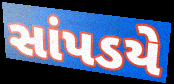
સાંપડયે